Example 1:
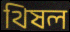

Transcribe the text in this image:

থিষল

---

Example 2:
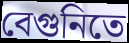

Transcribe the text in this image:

বেগুনিতে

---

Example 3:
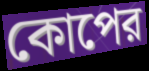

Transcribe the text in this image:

কোপের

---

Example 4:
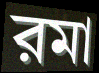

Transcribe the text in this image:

রমা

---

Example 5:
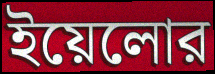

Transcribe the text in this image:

ইয়েলোর